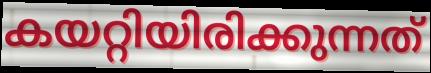
കയറ്റിയിരിക്കുന്നത്